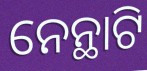
ନେନ୍ଥାଟି